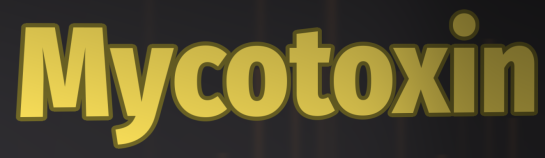
Mycotoxin